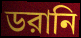
ডরানি